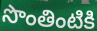
సొంతింటికి